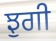
ਝੁਗੀ